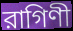
রাগিণী